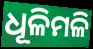
ଧୂଳିମଳି